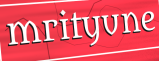
mrityune